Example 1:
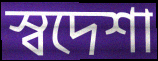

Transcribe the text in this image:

স্বদেশা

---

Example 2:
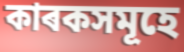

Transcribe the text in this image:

কাৰকসমূহে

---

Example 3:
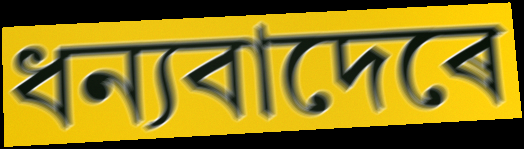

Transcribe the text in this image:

ধন্যবাদেৰে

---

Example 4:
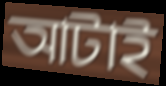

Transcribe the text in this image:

আটাই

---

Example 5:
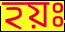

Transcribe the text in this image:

হয়ঃ